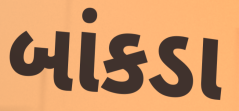
બાંકડા